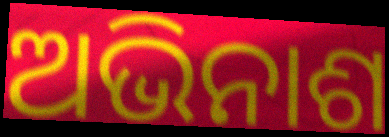
ଅଭିନାଶ